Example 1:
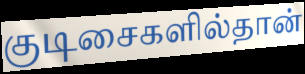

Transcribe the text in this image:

குடிசைகளில்தான்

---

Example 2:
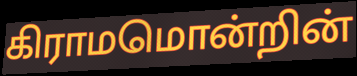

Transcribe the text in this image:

கிராமமொன்றின்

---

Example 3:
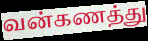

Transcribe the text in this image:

வன்கணத்து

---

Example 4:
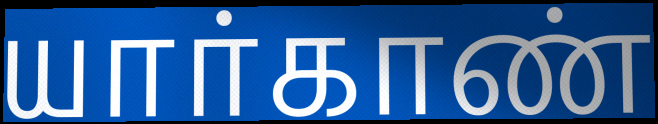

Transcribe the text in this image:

யார்காண்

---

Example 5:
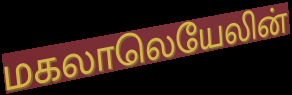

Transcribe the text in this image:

மகலாலெயேலின்